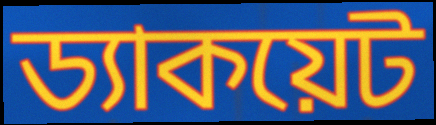
ড্যাকয়েট